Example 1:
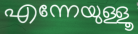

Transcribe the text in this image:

എന്നേയുള്ളൂ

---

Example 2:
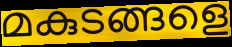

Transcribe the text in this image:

മകുടങ്ങളെ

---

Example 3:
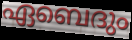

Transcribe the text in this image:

ഏബെദും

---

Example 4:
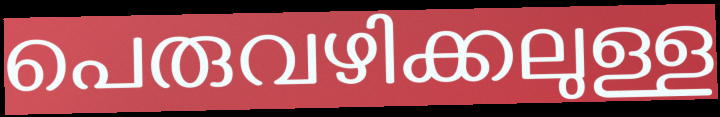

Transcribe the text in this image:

പെരുവഴിക്കലുള്ള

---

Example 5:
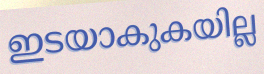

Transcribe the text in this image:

ഇടയാകുകയില്ല